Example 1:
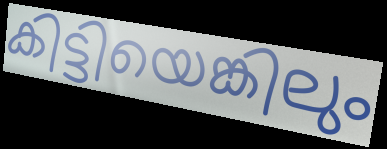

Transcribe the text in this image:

കിട്ടിയെങ്കിലും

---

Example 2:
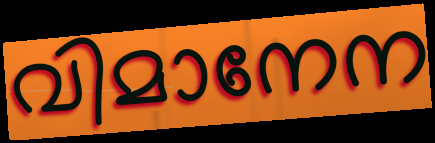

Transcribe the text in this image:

വിമാനേന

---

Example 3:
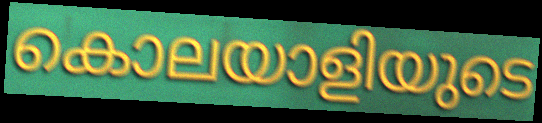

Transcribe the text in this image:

കൊലയാളിയുടെ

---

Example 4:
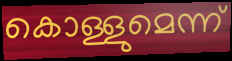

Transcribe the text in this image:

കൊള്ളുമെന്ന്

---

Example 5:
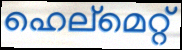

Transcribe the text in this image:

ഹെല്മെറ്റ്